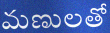
మణులతో